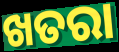
ଖତରା